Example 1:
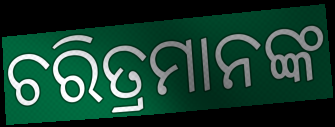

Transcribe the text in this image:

ଚରିତ୍ରମାନଙ୍କ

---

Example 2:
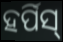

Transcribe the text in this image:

ହର୍ପିସ୍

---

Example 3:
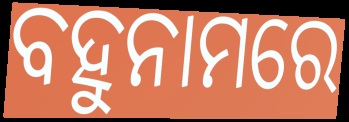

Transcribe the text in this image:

ବହୁନାମରେ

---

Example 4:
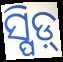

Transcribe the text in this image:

ସ୍ପିଡ଼୍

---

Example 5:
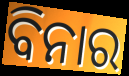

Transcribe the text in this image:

ବିନାର